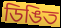
ডিঙিত